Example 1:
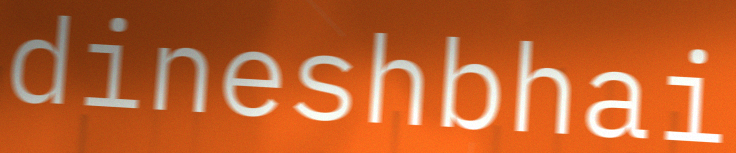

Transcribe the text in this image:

dineshbhai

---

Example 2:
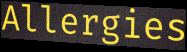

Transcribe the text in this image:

Allergies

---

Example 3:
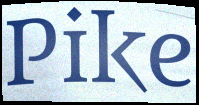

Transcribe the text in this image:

Pike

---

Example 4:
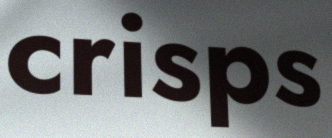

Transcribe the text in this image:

crisps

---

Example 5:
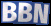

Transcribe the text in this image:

BBN